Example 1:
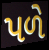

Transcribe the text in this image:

પળે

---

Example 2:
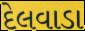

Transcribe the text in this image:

દેલવાડા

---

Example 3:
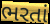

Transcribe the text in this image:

ભરતાં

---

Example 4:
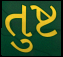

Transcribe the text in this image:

તુષ્ટ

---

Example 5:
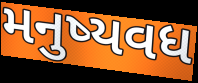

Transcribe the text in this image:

મનુષ્યવધ